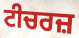
ਟੀਚਰਜ਼